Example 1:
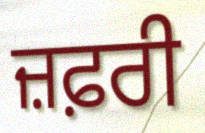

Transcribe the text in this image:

ਜ਼ਫ਼ਰੀ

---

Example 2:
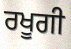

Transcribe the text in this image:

ਰਖੂਗੀ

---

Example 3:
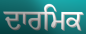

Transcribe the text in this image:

ਦਾਰਮਿਕ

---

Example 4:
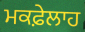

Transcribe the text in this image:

ਮਕਫ਼ੇਲਾਹ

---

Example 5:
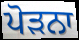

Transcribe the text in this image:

ਪੋੜਨਾ